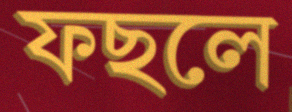
ফছলে